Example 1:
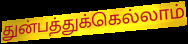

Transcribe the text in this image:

துன்பத்துக்கெல்லாம்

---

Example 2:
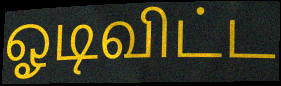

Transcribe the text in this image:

ஓடிவிட்ட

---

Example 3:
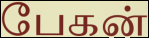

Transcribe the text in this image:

பேகன்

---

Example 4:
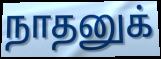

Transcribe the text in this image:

நாதனுக்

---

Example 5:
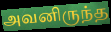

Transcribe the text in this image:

அவனிருந்த